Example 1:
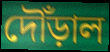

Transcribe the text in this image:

দৌঁড়াল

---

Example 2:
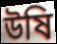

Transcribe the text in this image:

উষি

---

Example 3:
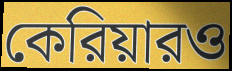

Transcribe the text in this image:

কেরিয়ারও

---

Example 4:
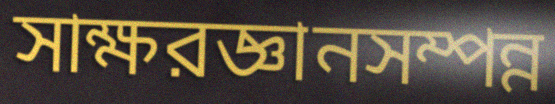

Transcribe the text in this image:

সাক্ষরজ্ঞানসম্পন্ন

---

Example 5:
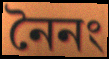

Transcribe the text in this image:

নৈনং